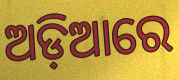
ଅଡ଼ିଆରେ